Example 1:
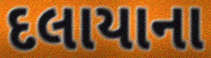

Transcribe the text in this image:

દલાયાના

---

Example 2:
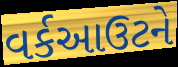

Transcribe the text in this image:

વર્કઆઉટને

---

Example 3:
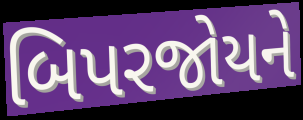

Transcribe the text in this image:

બિપરજોયને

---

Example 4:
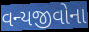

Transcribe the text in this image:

વન્યજીવોના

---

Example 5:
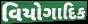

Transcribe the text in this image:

વિયોગાદિક